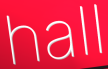
hall